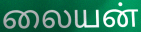
லையன்